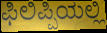
ಫಿಲಿಪ್ಪಿಯಲ್ಲಿ